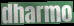
dharmo